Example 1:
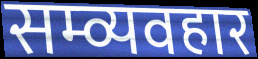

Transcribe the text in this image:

सम्व्यवहार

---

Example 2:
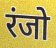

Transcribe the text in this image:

रंजो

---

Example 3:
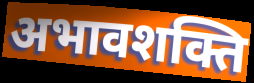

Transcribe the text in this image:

अभावशक्ति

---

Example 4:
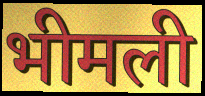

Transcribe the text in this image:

भीमली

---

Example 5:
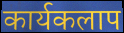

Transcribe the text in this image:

कार्यकलाप